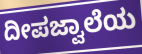
ದೀಪಜ್ವಾಲೆಯ